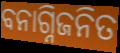
ବନାଗ୍ନିଜନିତ